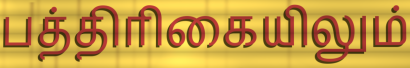
பத்திரிகையிலும்